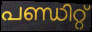
പണ്ഡിറ്റ്